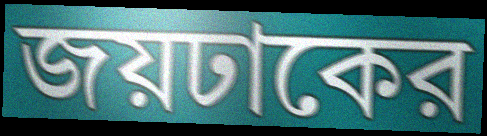
জয়ঢাকের